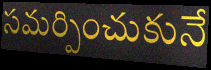
సమర్పించుకునే